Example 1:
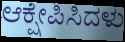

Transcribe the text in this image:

ಆಕ್ಷೇಪಿಸಿದಳು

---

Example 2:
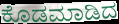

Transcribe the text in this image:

ಕೊಡಮಾಡಿದ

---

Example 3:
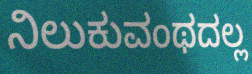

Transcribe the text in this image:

ನಿಲುಕುವಂಥದಲ್ಲ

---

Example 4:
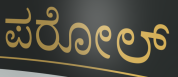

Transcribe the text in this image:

ಪರೋಲ್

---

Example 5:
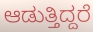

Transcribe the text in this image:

ಆಡುತ್ತಿದ್ದರೆ